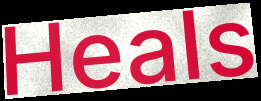
Heals